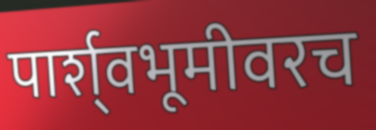
पार्श्वभूमीवरच